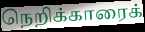
நெறிக்காரைக்